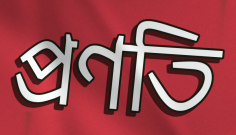
প্ৰণতি